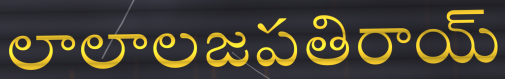
లాలాలజపతిరాయ్